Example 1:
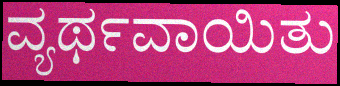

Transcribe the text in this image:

ವ್ಯರ್ಥವಾಯಿತು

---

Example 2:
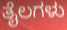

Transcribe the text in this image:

ತೈಲಗಳು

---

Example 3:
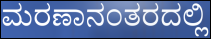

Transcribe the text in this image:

ಮರಣಾನಂತರದಲ್ಲಿ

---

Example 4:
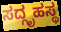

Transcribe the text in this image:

ಸದ್ಗೃಹಸ್ಥ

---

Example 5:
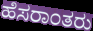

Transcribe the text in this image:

ಹೆಸರಾಂತರು